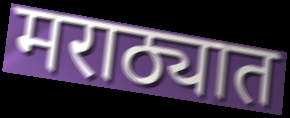
मराठ्यात